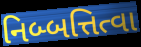
નિબ્બત્તિત્વા